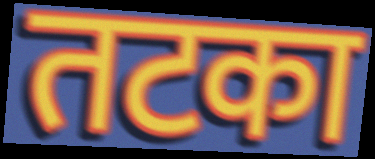
तटका